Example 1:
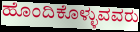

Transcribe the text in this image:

ಹೊಂದಿಕೊಳ್ಳುವವರು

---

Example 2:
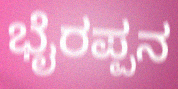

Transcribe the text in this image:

ಭೈರಪ್ಪನ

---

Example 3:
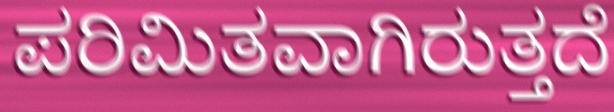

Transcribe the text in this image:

ಪರಿಮಿತವಾಗಿರುತ್ತದೆ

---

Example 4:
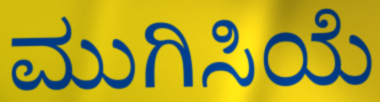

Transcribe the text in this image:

ಮುಗಿಸಿಯೆ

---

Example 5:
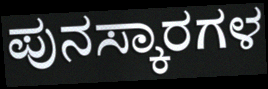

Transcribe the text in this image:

ಪುನಸ್ಕಾರಗಳ